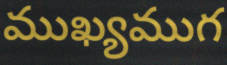
ముఖ్యముగ